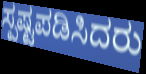
ಸ್ಪಷ್ಟಪಡಿಸಿದರು